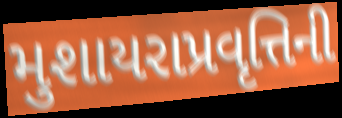
મુશાયરાપ્રવૃત્તિની